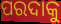
ପରଦାକୁ